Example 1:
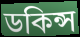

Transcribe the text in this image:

ডকিন্স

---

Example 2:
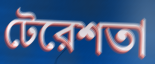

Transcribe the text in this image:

টেরেশতা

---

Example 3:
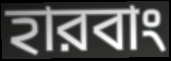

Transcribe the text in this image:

হারবাং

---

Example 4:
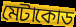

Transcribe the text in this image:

মেটাকোড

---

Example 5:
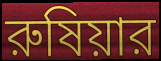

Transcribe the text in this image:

রুষিয়ার